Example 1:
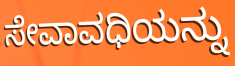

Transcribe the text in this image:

ಸೇವಾವಧಿಯನ್ನು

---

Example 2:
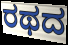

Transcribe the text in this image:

ರಥದ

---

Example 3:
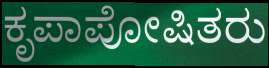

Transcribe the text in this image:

ಕೃಪಾಪೋಷಿತರು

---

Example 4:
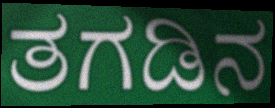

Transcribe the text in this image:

ತಗಡಿನ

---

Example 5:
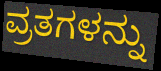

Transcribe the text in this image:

ವ್ರತಗಳನ್ನು